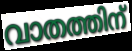
വാതത്തിന്